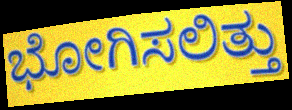
ಭೋಗಿಸಲಿತ್ತು